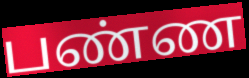
பண்ண